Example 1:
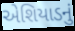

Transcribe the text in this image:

એશિયાડનું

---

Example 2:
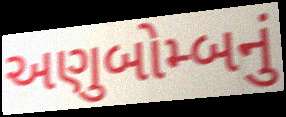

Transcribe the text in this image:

અણુબોમ્બનું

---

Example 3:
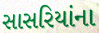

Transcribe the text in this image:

સાસરિયાંના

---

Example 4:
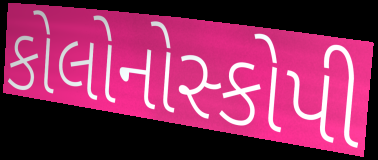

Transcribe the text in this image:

કોલોનોસ્કોપી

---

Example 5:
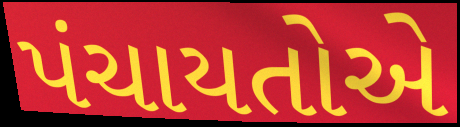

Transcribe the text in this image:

પંચાયતોએ